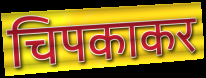
चिपकाकर